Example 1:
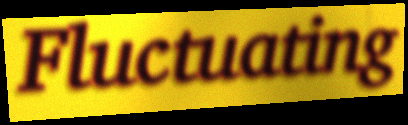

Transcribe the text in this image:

Fluctuating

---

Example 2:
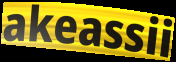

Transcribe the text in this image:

akeassii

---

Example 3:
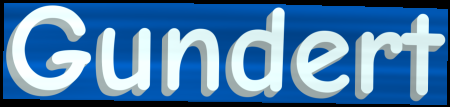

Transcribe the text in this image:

Gundert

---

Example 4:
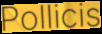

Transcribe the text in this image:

Pollicis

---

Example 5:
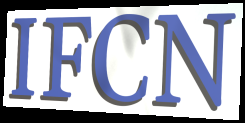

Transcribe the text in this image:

IFCN